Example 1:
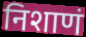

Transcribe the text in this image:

निशाणं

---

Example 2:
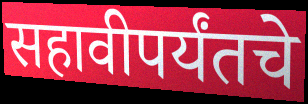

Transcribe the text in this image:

सहावीपर्यंतचे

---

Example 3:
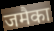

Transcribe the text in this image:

जमैका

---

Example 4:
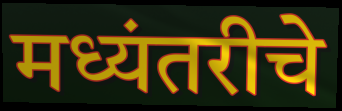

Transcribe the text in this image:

मध्यंतरीचे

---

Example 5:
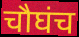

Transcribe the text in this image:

चौघंच